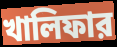
খালিফার